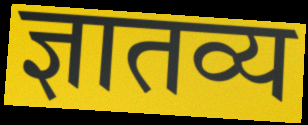
ज्ञातव्य